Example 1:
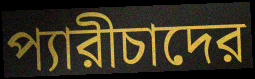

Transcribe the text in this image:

প্যারীচাদের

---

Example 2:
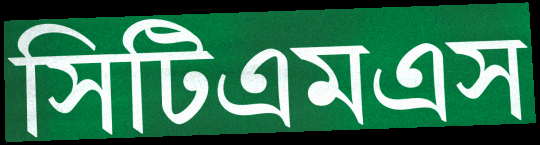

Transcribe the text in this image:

সিটিএমএস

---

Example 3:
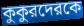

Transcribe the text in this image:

কুকুরদেরকে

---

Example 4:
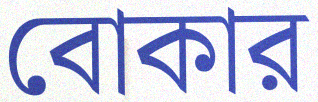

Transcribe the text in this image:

বোকার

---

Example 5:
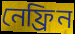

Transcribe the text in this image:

নেফ্রিন